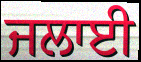
ਜਲਾਈ